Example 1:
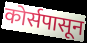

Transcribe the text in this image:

कोर्सपासून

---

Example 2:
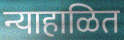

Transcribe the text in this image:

न्याहाळित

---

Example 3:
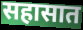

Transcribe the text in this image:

सहासात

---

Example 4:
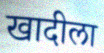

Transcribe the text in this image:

खादीला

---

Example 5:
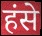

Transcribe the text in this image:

हंसे